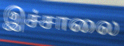
இச்சாலை